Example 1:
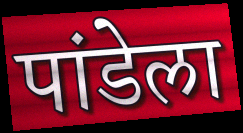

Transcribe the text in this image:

पांडेला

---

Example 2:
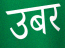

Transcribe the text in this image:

उबर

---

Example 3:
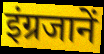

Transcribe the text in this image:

इंग्रजानें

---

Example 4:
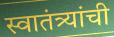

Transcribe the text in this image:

स्वातंत्र्यांची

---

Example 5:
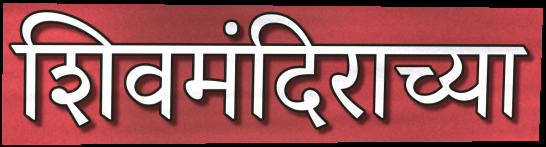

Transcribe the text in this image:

शिवमंदिराच्या